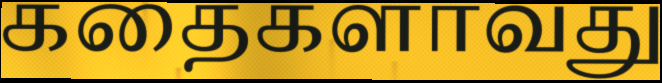
கதைகளாவது